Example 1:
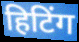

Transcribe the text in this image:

हिटिंग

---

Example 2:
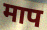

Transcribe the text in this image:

माप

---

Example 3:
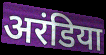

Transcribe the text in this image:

अरंडिया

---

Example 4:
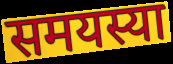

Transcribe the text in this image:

समयस्या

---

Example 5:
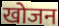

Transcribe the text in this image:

खोजन